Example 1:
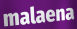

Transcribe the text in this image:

malaena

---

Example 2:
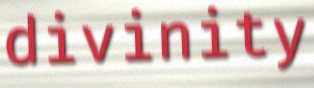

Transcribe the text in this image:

divinity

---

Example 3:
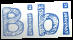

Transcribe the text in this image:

Bibi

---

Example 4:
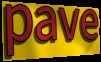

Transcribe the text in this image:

pave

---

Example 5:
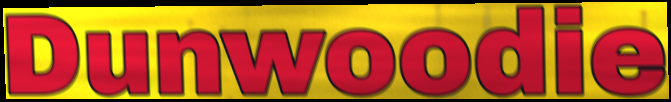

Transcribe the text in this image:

Dunwoodie